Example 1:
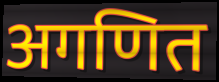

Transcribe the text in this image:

अगणित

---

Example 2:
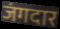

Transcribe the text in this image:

जंगदार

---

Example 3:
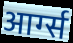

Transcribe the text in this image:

आर्ग्स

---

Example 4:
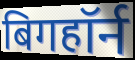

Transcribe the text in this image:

बिगहॉर्न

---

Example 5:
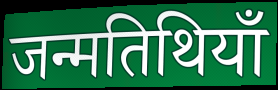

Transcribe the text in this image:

जन्मतिथियाँ